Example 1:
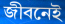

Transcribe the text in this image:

জীবনেই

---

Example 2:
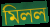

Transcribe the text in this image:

মিলল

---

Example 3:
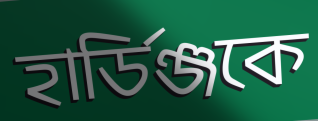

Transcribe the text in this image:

হার্ডিঞ্জকে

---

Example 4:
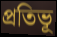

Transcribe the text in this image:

প্রতিভূ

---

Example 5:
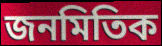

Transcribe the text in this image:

জনমিতিক